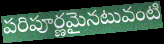
పరిపూర్ణమైనటువంటి